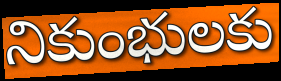
నికుంభులకు